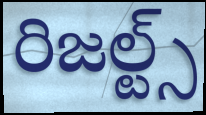
రిజల్ట్స్